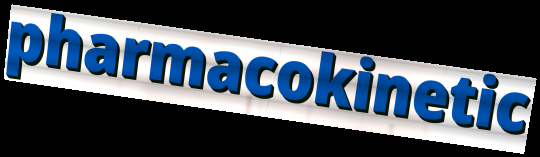
pharmacokinetic